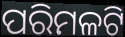
ପରିମଳଟି